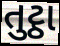
તુટ્ઠા